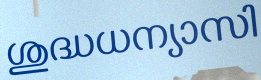
ശുദ്ധധന്യാസി